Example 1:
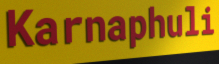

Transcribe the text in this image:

Karnaphuli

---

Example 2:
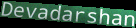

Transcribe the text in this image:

Devadarshan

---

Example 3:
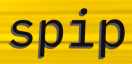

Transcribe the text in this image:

spip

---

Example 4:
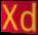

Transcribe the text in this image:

Xd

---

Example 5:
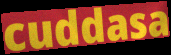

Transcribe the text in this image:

cuddasa